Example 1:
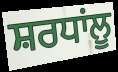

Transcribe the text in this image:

ਸ਼ਰਧਾਂਲੂ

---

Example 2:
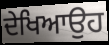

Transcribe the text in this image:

ਦੇਖਿਆਉਹ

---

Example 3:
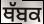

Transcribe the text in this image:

ਥੱਬਕ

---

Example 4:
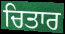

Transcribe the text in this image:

ਚਿਤਾਰ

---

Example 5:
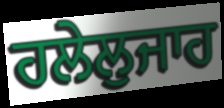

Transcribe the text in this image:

ਹਲੇਲੁਜਾਹ